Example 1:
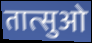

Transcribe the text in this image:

तात्सुओ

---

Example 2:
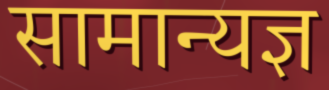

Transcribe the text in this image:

सामान्यज्ञ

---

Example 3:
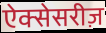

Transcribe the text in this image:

ऐक्सेसरीज़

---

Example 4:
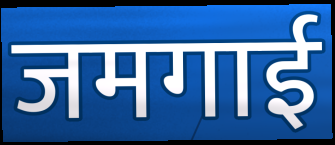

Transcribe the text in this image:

जमगाई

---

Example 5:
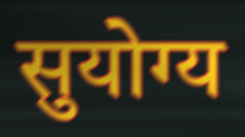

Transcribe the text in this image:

सुयोग्य